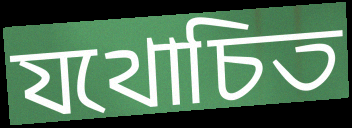
যথোচিত